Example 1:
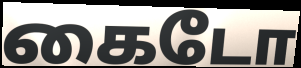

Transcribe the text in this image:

கைடோ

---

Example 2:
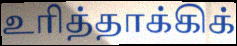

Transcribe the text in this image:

உரித்தாக்கிக்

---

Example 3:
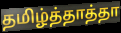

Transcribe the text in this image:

தமிழ்த்தாத்தா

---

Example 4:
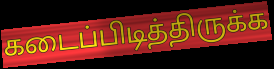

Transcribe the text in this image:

கடைப்பிடித்திருக்க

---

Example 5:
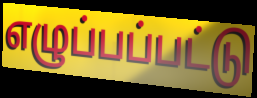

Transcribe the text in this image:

எழுப்பப்பட்டு